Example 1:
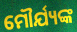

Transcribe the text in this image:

ମୌର୍ଯ୍ୟଙ୍କ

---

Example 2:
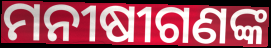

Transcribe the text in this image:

ମନୀଷୀଗଣଙ୍କ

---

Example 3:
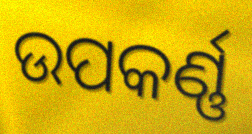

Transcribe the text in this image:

ଉପକର୍ଣ୍ଣ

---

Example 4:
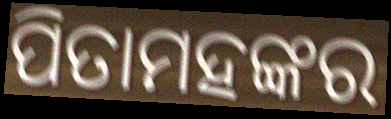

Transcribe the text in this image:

ପିତାମହଙ୍କର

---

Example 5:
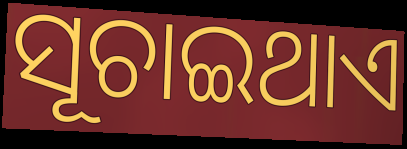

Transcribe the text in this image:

ସୂଚାଇଥାଏ